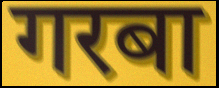
गरबा